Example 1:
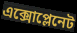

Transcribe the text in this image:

এক্সোপ্লেনেট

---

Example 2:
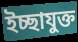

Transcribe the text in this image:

ইচ্ছাযুক্ত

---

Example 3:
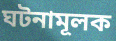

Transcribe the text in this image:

ঘটনামূলক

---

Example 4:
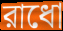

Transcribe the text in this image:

রাধো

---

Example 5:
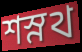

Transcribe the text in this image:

শস্নথ